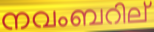
നവംബറില്